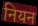
नियन